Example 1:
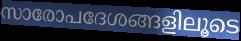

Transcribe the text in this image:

സാരോപദേശങ്ങളിലൂടെ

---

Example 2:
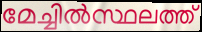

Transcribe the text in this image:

മേച്ചിൽസ്ഥലത്ത്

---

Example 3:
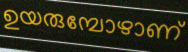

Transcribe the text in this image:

ഉയരുമ്പോഴാണ്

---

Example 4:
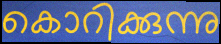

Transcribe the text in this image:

കൊറിക്കുന്നു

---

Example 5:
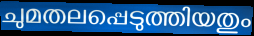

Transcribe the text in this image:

ചുമതലപ്പെടുത്തിയതും